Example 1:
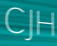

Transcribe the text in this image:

CJH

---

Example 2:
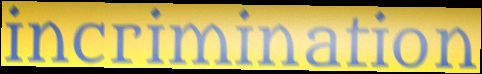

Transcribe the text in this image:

incrimination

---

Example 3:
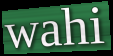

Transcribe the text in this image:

wahi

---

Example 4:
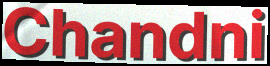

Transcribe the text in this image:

Chandni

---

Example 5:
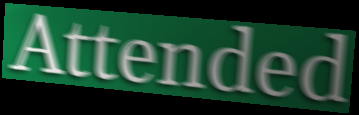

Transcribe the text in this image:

Attended